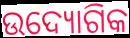
ଉଦ୍ୟୋଗିକ